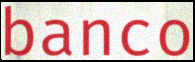
banco